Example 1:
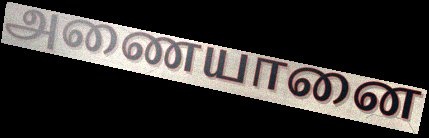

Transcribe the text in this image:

அணையானை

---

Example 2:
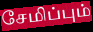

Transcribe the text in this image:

சேமிப்பும்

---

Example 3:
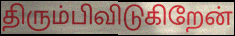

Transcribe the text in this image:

திரும்பிவிடுகிறேன்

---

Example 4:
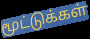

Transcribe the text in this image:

மூட்டுக்கள்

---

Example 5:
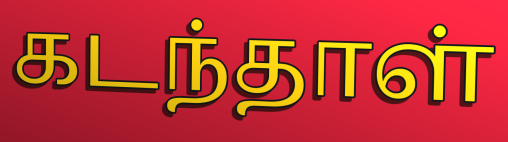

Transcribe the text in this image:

கடந்தாள்